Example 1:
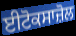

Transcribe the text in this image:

ਈਟੋਕਸਾਜ਼ੋਲ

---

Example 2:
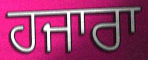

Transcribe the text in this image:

ਹਜਾਰਾ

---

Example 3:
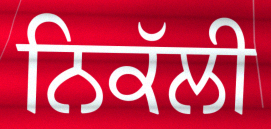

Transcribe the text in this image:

ਨਿਕੱਲੀ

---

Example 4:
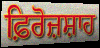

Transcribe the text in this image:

ਫ਼ਿਰੋਜ਼ਸ਼ਾਹ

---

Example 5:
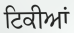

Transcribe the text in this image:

ਟਿਕੀਆਂ